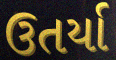
ઉતર્યા